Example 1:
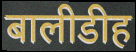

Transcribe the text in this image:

बालीडीह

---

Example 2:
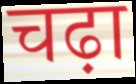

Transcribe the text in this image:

चढ़ा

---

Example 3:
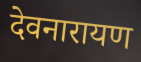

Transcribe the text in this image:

देवनारायण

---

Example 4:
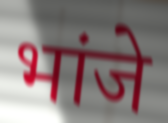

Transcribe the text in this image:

भांजे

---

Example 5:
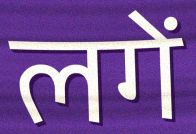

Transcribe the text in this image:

लगें